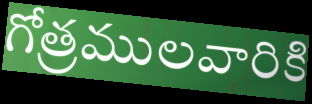
గోత్రములవారికి